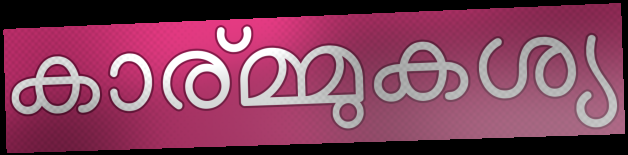
കാര്മ്മുകശ്യ